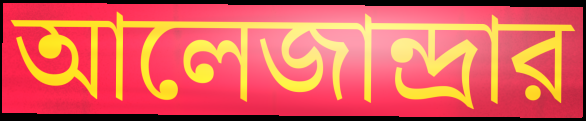
আলেজান্দ্রার